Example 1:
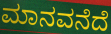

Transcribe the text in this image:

ಮಾನವನೆದೆ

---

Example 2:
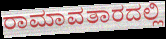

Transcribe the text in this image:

ರಾಮಾವತಾರದಲ್ಲಿ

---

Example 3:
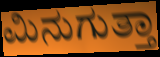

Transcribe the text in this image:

ಮಿನುಗುತ್ತಾ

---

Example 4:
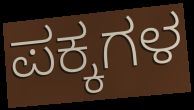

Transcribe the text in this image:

ಪಕ್ಕಗಳ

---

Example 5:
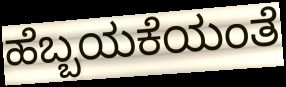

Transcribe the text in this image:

ಹೆಬ್ಬಯಕೆಯಂತೆ